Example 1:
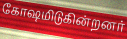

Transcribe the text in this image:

கோஷமிடுகின்றனர்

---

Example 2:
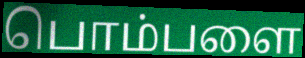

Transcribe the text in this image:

பொம்பளை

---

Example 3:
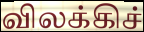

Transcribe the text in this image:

விலக்கிச்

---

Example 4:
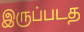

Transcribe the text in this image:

இருப்படத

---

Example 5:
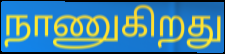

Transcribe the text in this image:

நாணுகிறது